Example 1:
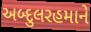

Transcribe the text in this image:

અબ્દુલરહમાને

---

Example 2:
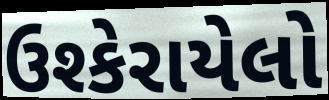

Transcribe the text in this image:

ઉશ્કેરાયેલો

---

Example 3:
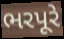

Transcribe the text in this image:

ભરપૂરે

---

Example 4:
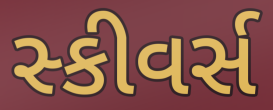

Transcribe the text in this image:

સ્કીવર્સ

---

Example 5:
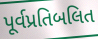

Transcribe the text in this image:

પૂર્વપ્રતિબલિત